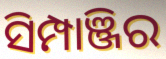
ସିମ୍ପାଞ୍ଜିର